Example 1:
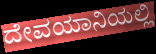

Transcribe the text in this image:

ದೇವಯಾನಿಯಲ್ಲಿ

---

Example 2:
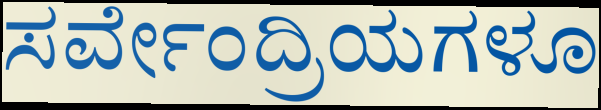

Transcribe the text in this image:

ಸರ್ವೇಂದ್ರಿಯಗಳೂ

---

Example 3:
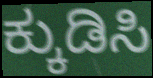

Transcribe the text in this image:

ಕ್ಕುಡಿಸಿ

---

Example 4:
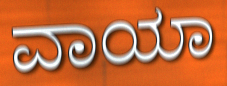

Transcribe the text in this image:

ವಾಯಾ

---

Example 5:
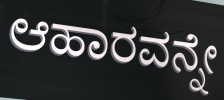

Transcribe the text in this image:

ಆಹಾರವನ್ನೇ